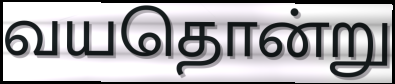
வயதொன்று